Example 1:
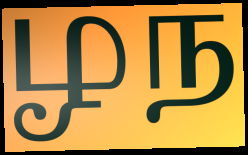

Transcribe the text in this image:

ழந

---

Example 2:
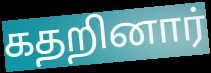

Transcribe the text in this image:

கதறினார்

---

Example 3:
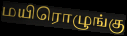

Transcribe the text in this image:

மயிரொழுங்கு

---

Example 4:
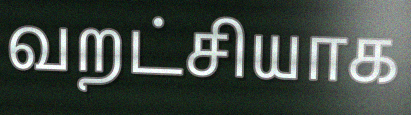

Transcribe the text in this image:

வறட்சியாக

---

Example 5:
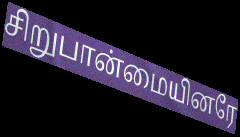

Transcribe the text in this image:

சிறுபான்மையினரே